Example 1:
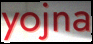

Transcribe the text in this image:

yojna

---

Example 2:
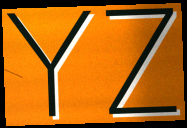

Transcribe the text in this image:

YZ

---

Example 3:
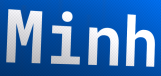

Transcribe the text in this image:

Minh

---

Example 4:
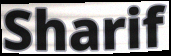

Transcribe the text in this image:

Sharif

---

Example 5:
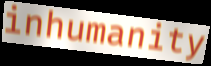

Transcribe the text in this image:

inhumanity